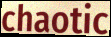
chaotic